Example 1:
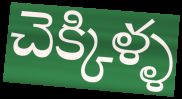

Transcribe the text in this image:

చెక్కిళ్ళ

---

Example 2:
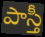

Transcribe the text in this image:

పాస్తీ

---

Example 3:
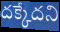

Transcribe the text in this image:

దక్కేదని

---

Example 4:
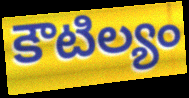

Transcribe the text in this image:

కౌటిల్యం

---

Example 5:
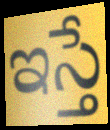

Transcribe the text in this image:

ఇస్తే